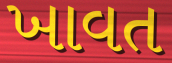
ખાવત